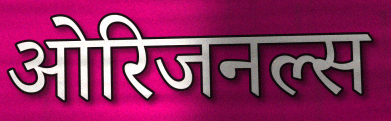
ओरिजनल्स